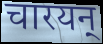
चारयन्